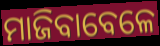
ମାଜିବାବେଳେ